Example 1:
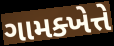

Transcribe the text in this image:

ગામક્ખેત્તે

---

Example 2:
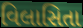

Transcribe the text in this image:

વિલાસિતા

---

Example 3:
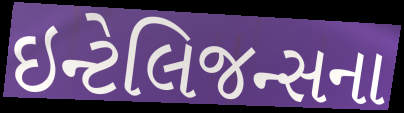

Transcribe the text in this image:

ઇન્ટેલિજન્સના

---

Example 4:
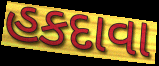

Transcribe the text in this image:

હકદાવા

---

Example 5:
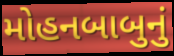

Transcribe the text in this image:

મોહનબાબુનું